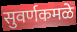
सुवर्णकमळे